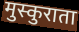
मुस्कुराता